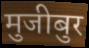
मुजीबुर